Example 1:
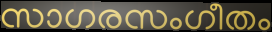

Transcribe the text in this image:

സാഗരസംഗീതം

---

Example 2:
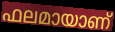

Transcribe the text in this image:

ഫലമായാണ്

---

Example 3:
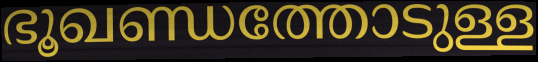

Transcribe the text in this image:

ഭൂഖണ്ഡത്തോടുള്ള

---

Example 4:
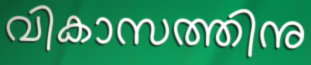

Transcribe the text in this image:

വികാസത്തിനു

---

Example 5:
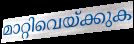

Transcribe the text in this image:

മാറ്റിവെയ്ക്കുക